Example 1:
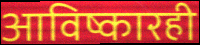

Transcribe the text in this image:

आविष्कारही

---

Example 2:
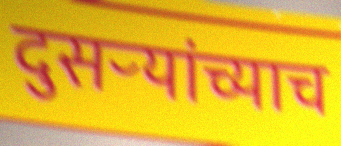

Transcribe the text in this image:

दुसऱ्यांच्याच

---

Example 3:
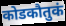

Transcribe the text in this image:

कोडकौतुकं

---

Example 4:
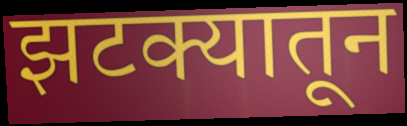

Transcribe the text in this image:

झटक्यातून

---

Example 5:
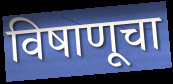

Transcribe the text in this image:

विषाणूचा